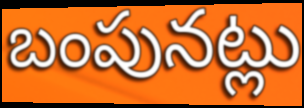
బంపునట్లు